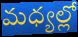
మధ్యల్లో